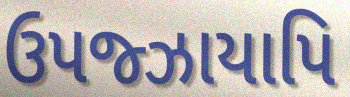
ઉપજ્ઝાયાપિ